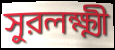
সুরলক্ষ্মী